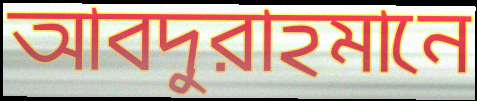
আবদুরাহমানে